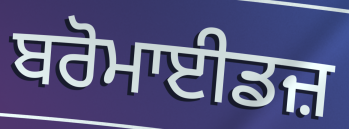
ਬਰੋਮਾਈਡਜ਼